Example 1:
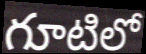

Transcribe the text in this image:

గూటిలో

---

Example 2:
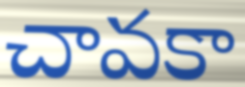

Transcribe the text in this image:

చావకా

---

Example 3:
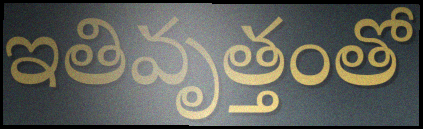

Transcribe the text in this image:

ఇతివృత్తంతో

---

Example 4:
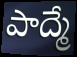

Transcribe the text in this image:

పాద్మే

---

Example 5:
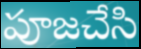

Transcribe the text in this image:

పూజచేసి